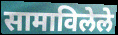
सामाविलेले